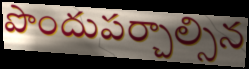
పొందుపర్చాల్సిన